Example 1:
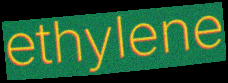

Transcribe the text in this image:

ethylene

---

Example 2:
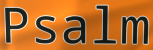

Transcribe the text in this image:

Psalm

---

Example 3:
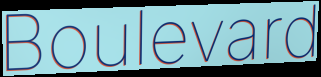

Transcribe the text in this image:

Boulevard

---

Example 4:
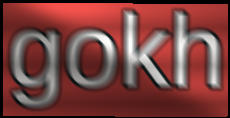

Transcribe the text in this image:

gokh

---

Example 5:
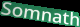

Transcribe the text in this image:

Somnath